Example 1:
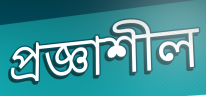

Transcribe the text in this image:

প্রজ্ঞাশীল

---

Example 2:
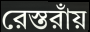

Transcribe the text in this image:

রেস্তরাঁয়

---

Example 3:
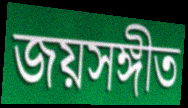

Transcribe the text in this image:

জয়সঙ্গীত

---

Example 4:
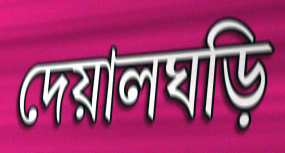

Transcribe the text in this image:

দেয়ালঘড়ি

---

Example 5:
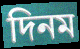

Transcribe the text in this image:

দিনম